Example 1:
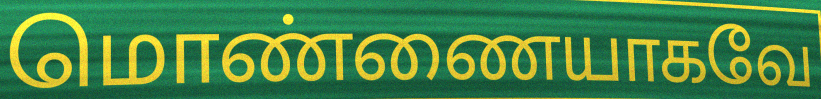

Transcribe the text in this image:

மொண்ணையாகவே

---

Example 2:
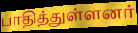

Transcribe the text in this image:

பாதித்துள்ளனர்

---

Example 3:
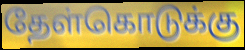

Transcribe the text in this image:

தேள்கொடுக்கு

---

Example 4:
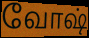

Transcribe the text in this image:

வோஷ்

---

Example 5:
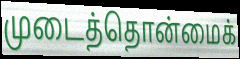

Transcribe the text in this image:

முடைத்தொன்மைக்